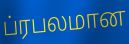
ப்ரபலமான